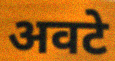
अवटे